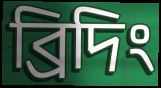
ব্রিদিং